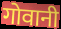
गोवानी